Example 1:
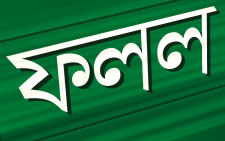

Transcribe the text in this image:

ফলল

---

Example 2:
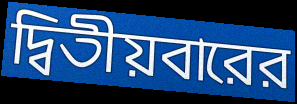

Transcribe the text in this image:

দ্বিতীয়বারের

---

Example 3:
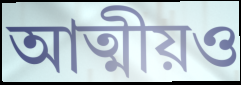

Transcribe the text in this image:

আত্মীয়ও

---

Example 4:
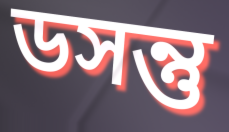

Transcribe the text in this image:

ডসন্তু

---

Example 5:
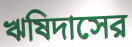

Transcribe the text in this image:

ঋষিদাসের